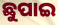
ଛୁପାଇ